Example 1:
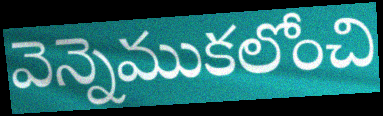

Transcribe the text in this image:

వెన్నెముకలోంచి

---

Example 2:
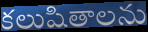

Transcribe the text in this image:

కలుషితాలను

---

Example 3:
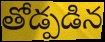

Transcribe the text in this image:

తోడ్పడిన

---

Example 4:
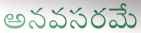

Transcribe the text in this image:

అనవసరమే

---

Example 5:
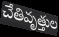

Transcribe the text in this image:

చేతివృత్తుల